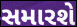
સમારશે